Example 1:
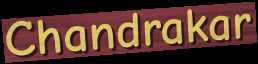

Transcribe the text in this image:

Chandrakar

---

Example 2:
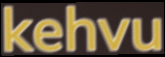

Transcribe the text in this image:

kehvu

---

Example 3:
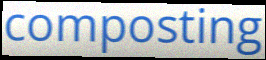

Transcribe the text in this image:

composting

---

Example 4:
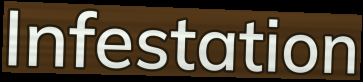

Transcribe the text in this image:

Infestation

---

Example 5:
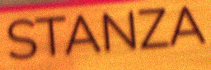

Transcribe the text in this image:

STANZA